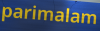
parimalam